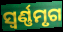
ସ୍ଵର୍ଣ୍ଣମୃଗ